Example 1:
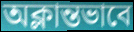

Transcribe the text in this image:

অক্লান্তভাবে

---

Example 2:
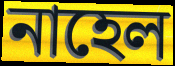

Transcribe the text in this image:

নাহেল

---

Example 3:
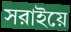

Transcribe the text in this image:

সরাইয়ে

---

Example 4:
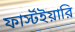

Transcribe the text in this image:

ফার্স্টইয়ারি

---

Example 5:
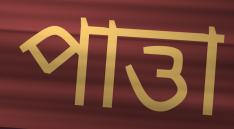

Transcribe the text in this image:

পাত্তা